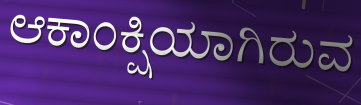
ಆಕಾಂಕ್ಷಿಯಾಗಿರುವ